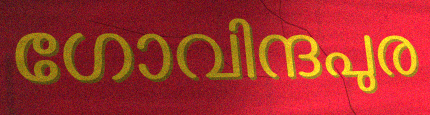
ഗോവിന്ദപുര